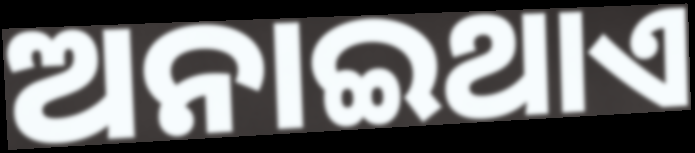
ଅନାଇଥାଏ